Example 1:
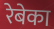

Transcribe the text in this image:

रेबेका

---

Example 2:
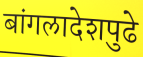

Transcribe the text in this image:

बांगलादेशपुढे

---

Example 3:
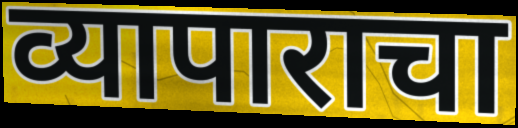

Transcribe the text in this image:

व्यापाराचा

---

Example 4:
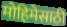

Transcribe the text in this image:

मोहिमेसाठी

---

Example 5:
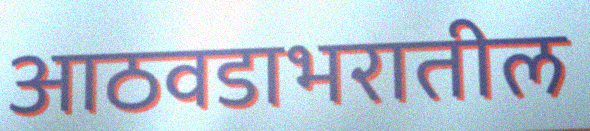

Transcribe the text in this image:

आठवडाभरातील